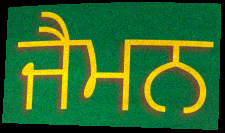
ਜੈਮਨ